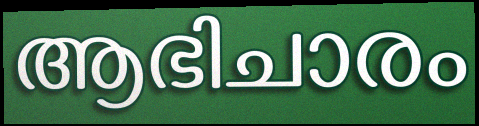
ആഭിചാരം